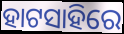
ହାଟସାହିରେ